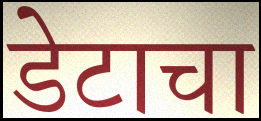
डेटाचा